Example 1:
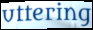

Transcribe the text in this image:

uttering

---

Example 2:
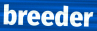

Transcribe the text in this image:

breeder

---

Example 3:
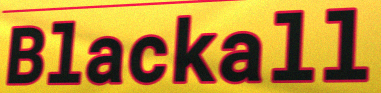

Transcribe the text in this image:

Blackall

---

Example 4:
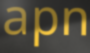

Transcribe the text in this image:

apn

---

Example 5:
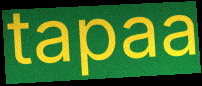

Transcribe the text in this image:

tapaa